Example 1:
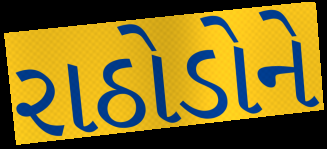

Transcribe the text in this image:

રાઠોડોને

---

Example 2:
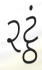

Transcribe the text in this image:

રટ્ઠં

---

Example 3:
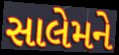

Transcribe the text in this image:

સાલેમને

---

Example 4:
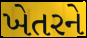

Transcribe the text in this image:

ખેતરને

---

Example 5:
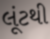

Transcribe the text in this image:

લૂંટથી